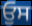
ਓੁਸ